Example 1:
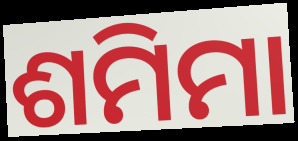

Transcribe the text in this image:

ଶମିମା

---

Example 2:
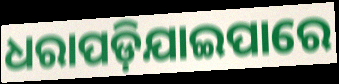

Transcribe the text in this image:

ଧରାପଡ଼ିଯାଇପାରେ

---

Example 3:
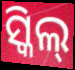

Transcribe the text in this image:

ସ୍କିଲ୍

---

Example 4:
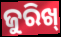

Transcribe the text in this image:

ଜୁରିଖ୍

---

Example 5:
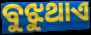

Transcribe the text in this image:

ବୁଝୁଥାଏ